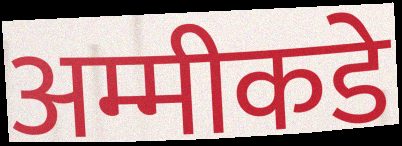
अम्मीकडे